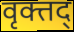
वृक्तद्